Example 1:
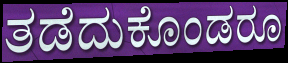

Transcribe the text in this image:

ತಡೆದುಕೊಂಡರೂ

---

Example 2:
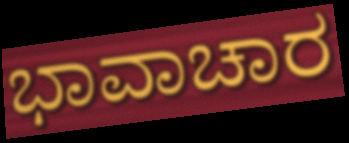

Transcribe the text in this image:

ಭಾವಾಚಾರ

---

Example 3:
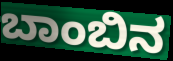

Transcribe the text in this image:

ಬಾಂಬಿನ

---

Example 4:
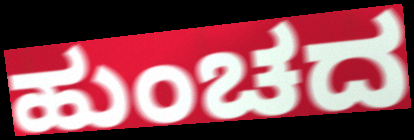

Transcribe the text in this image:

ಹುಂಚದ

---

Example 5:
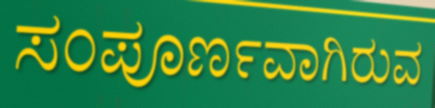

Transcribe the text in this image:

ಸಂಪೂರ್ಣವಾಗಿರುವ